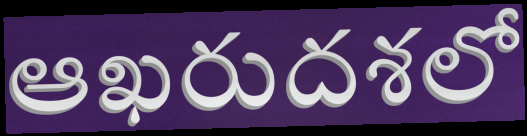
ఆఖరుదశలో